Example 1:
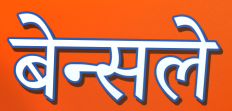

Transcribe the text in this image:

बेन्सले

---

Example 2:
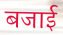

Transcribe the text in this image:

बजाई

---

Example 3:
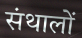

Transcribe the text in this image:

संथालों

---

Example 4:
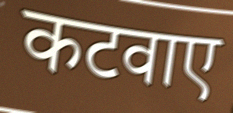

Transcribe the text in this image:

कटवाए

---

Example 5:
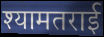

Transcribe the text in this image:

श्यामतराई